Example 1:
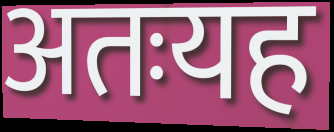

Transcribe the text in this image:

अतःयह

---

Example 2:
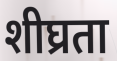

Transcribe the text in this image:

शीघ्रता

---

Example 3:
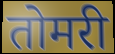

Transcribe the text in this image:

तोमरी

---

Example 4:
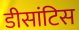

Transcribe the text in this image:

डीसांटिस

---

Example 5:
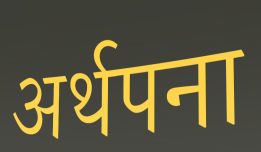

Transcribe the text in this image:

अर्थपना